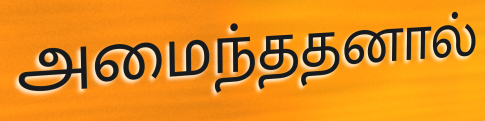
அமைந்ததனால்